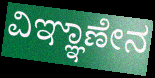
ವಿಞ್ಞಾಣೇನ